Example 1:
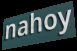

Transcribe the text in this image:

nahoy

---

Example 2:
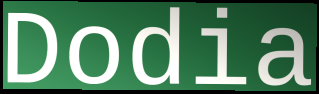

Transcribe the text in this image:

Dodia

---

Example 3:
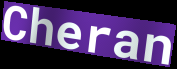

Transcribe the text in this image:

Cheran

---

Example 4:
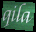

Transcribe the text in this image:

qila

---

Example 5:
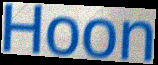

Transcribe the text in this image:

Hoon